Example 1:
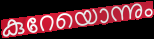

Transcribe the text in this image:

കുറേയൊന്നും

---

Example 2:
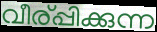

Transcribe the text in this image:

വീര്പ്പിക്കുന്ന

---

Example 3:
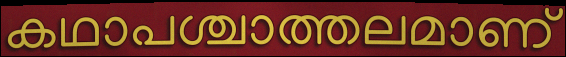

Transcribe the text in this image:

കഥാപശ്ചാത്തലമാണ്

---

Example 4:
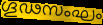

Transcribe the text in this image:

ഗൂഢസംഘം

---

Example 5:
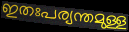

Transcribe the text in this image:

ഇതഃപര്യന്തമുള്ള